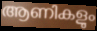
ആണികളും